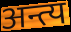
अन्त्य